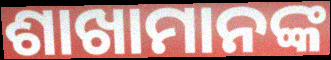
ଶାଖାମାନଙ୍କ